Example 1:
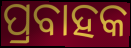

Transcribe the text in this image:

ପ୍ରବାହକ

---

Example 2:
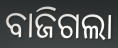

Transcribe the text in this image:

ବାଜିଗଲା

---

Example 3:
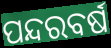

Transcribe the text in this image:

ପନ୍ଦରବର୍ଷ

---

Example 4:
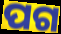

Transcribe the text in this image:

ପଗ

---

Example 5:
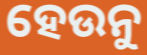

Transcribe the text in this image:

ହେଉନୁ